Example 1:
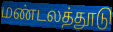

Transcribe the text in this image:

மண்டலத்தூடு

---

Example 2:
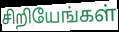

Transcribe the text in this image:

சிறியேங்கள்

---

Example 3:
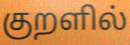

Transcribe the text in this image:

குறளில்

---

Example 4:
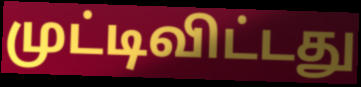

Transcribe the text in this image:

முட்டிவிட்டது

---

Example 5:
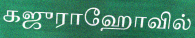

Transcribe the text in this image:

கஜுராஹோவில்